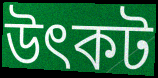
উৎকট